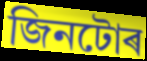
জিনটোৰ